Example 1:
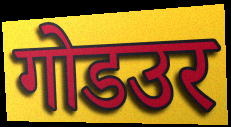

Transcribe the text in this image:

गोडउर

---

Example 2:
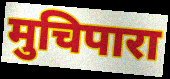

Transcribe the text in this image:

मुचिपारा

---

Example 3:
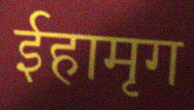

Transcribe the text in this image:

ईहामृग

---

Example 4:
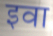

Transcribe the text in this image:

इवा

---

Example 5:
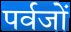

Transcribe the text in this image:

पर्वजों